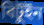
বিটুইন